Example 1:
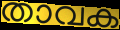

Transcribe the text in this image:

താവക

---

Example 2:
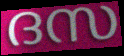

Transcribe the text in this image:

ദസ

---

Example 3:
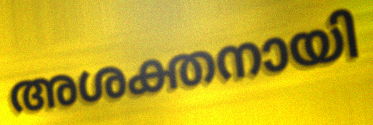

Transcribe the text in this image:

അശക്തനായി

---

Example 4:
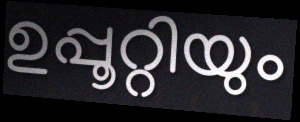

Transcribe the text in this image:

ഉപ്പൂറ്റിയും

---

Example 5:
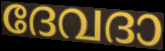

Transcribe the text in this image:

ദേവദാ